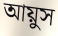
আয়ুস